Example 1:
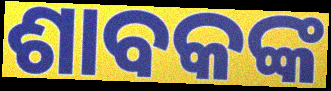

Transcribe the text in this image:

ଶାବକଙ୍କ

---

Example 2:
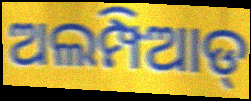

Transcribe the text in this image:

ଅଲମ୍ପିଆଡ୍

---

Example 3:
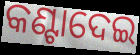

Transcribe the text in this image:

କଣ୍ଟାଦେଇ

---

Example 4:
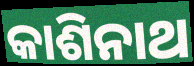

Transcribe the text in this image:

କାଶିନାଥ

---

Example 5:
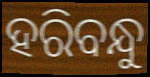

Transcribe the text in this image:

ହରିବନ୍ଧୁ